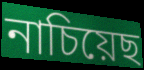
নাচিয়েছ